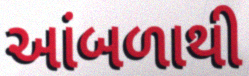
આંબળાથી